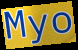
Myo